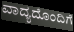
ವಾದ್ಯದೊಂದಿಗೆ